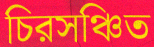
চিরসঞ্চিত